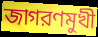
জাগরণমুখী